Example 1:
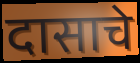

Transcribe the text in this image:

दासाचे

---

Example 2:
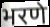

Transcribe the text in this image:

भरणे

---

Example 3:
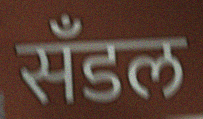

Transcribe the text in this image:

सँडल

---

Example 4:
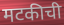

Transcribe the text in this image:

मटकीची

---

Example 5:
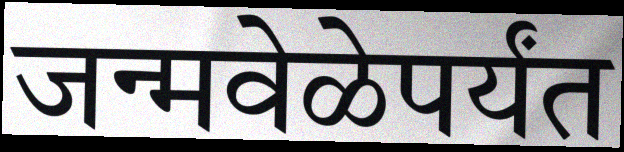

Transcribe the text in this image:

जन्मवेळेपर्यंत